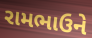
રામભાઉને